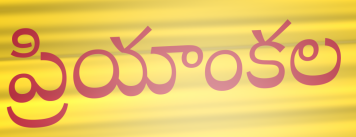
ప్రియాంకల